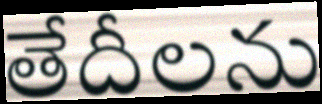
తేదీలను